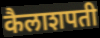
कैलाशपती